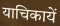
याचिकायें